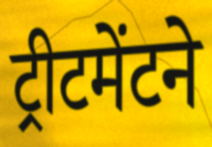
ट्रीटमेंटने